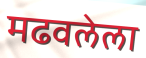
मढवलेला